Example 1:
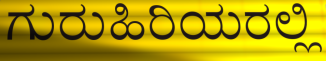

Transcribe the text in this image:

ಗುರುಹಿರಿಯರಲ್ಲಿ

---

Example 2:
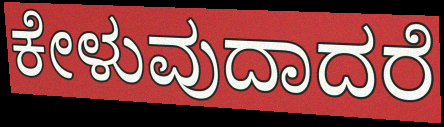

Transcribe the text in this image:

ಕೇಳುವುದಾದರೆ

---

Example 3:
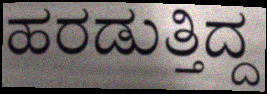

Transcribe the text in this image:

ಹರಡುತ್ತಿದ್ದ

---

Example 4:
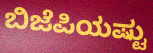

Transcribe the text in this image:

ಬಿಜೆಪಿಯಷ್ಟು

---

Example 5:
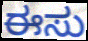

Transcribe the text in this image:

ಈಸು